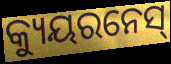
କ୍ୟୁୟରନେସ୍